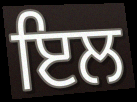
ਇਲ